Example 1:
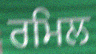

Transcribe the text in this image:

ਰਮਿਲ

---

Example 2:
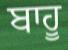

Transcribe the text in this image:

ਬਾਹੂ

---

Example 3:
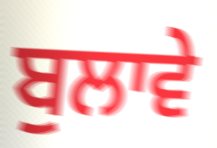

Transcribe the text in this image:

ਬੁਲਾਵੇ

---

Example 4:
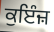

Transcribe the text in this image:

ਕੁਇੰਜ਼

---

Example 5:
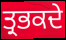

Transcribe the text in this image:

ਤ੍ਰਭਕਦੇ